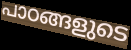
പാഠങ്ങളുടെ